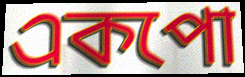
একপো